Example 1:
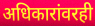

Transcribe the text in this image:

अधिकारांवरही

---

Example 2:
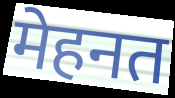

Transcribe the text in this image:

मेहनत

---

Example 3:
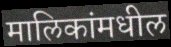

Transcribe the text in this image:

मालिकांमधील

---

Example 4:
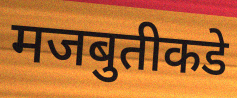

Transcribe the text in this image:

मजबुतीकडे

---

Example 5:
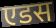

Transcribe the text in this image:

एडस